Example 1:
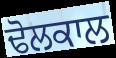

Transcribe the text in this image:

ਢੋਲਕਾਲ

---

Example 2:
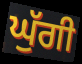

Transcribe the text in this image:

ਘੁੱਗੀ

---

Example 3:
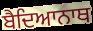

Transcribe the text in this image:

ਬੈਦਿਆਨਾਥ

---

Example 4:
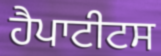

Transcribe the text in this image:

ਹੈਪਾਟੀਟਸ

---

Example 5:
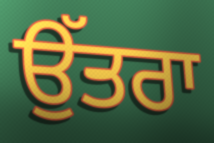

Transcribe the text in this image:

ਉੱਤਰਾ